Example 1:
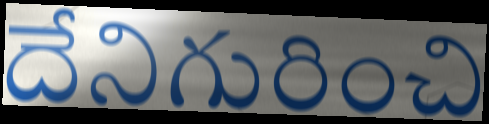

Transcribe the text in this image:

దేనిగురించి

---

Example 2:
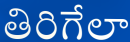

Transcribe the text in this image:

తిరిగేలా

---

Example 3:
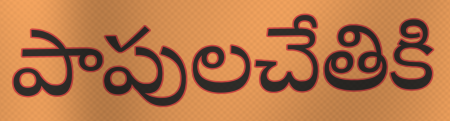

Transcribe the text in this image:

పాపులచేతికి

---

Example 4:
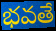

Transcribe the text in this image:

భవతే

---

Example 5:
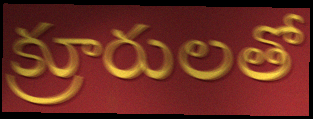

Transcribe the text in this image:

క్రూరులతో